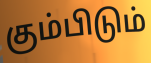
கும்பிடும்